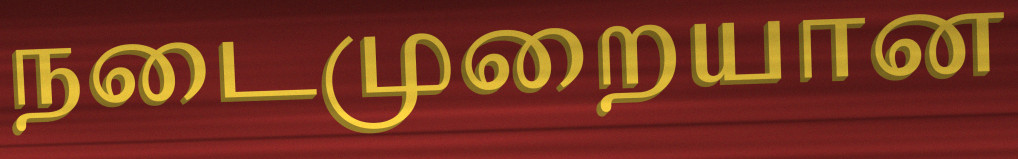
நடைமுறையான